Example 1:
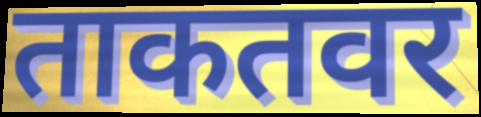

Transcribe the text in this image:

ताकतवर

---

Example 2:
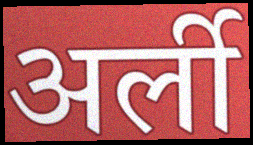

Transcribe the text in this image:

अर्ली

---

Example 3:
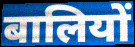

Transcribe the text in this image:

बालियों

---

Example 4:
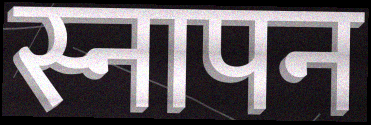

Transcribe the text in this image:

स्नापन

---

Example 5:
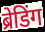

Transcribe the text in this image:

ब्रेडिंग